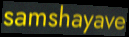
samshayave